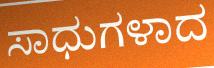
ಸಾಧುಗಳಾದ